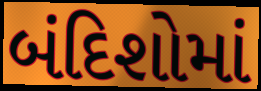
બંદિશોમાં